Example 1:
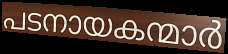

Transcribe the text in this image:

പടനായകന്മാർ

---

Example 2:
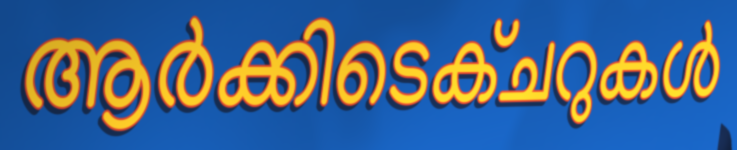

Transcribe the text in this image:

ആർക്കിടെക്ചറുകൾ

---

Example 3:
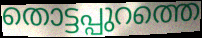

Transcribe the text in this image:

തൊട്ടപ്പുറത്തെ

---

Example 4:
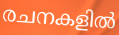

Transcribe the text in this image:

രചനകളിൽ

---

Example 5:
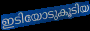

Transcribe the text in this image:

ഇടിയോടുകൂടിയ